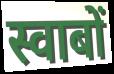
स्वाबों